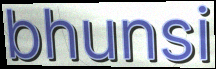
bhunsi